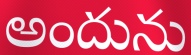
అందును